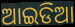
ଆଇଡିଆ